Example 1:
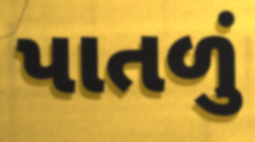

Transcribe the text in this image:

પાતળું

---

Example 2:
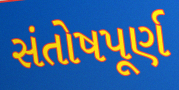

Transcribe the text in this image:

સંતોષપૂર્ણ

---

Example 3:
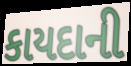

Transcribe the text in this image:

કાયદાની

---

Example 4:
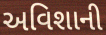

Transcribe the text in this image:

અવિશાની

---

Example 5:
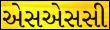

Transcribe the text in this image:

એસએસસી